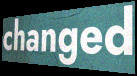
changed